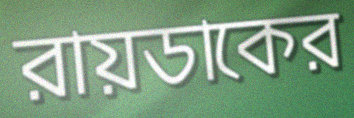
রায়ডাকের